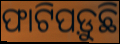
ଫାଟିପଡ଼ୁଛି